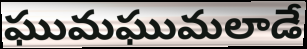
ఘుమఘుమలాడే